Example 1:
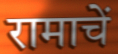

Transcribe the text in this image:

रामाचें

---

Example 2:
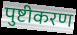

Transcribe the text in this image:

पुष्टीकरण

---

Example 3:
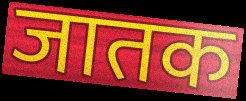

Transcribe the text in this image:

जातक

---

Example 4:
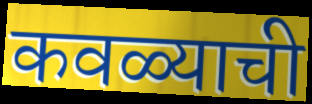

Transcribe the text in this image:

कवळ्याची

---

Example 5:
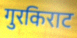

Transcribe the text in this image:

गुरकिराट